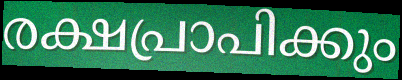
രക്ഷപ്രാപിക്കും